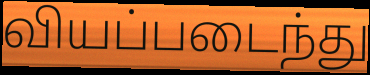
வியப்படைந்து